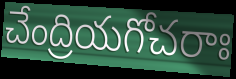
చేంద్రియగోచరాః